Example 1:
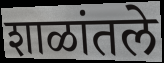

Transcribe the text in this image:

शाळांतले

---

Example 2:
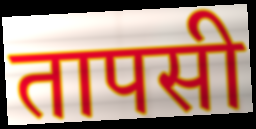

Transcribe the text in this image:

तापसी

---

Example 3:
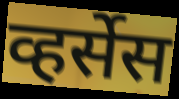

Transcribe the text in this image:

व्हर्सेस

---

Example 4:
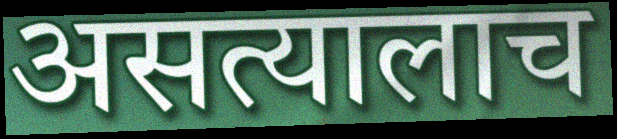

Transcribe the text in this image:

असत्यालाच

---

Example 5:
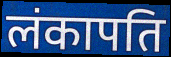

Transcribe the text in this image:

लंकापति